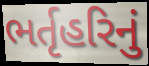
ભર્તૃહરિનું